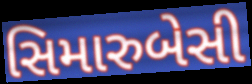
સિમારુબેસી